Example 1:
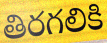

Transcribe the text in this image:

తిరగలికి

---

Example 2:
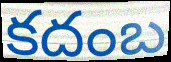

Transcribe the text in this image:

కదంబ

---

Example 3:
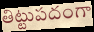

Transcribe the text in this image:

తిట్టుపదంగా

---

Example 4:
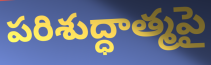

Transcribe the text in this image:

పరిశుద్ధాత్మపై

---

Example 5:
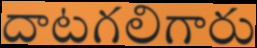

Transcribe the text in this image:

దాటగలిగారు